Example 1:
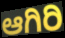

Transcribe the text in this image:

ಆಗಿರಿ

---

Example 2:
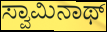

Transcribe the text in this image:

ಸ್ವಾಮಿನಾಥ್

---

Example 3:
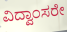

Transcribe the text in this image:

ವಿದ್ವಾಂಸರೇ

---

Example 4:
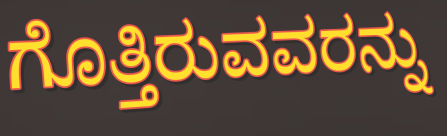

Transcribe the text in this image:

ಗೊತ್ತಿರುವವರನ್ನು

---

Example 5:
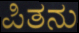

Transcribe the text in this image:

ಪಿತನು